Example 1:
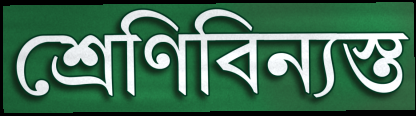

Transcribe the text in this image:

শ্রেণিবিন্যস্ত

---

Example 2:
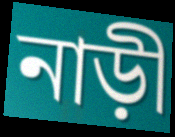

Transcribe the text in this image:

নাড়ী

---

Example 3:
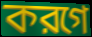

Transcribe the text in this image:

করগে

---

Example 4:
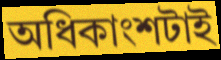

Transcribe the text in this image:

অধিকাংশটাই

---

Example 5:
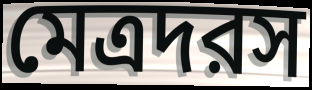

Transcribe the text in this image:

মেত্রদরস